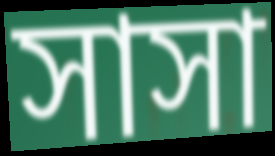
সাসা